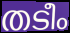
തടീം